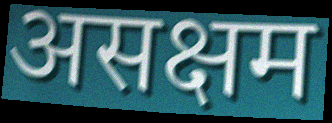
असक्षम